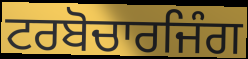
ਟਰਬੋਚਾਰਜਿੰਗ